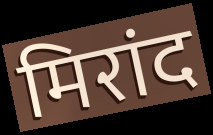
मिरांद